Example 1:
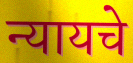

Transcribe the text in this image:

न्यायचे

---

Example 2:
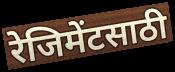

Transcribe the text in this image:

रेजिमेंटसाठी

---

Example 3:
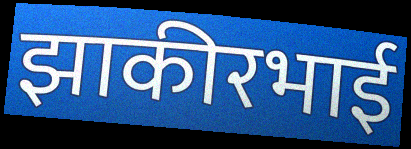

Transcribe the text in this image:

झाकीरभाई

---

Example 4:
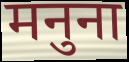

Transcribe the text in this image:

मनुना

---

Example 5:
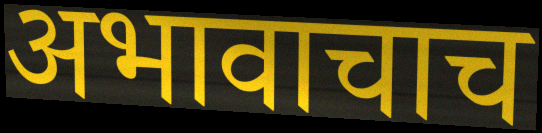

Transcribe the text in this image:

अभावाचाच